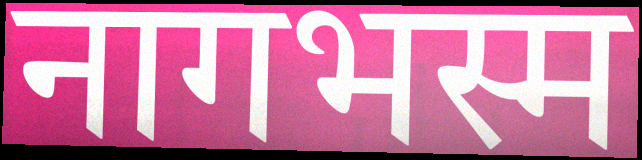
नागभस्म